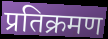
प्रतिक्रमण